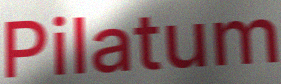
Pilatum